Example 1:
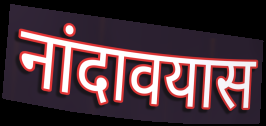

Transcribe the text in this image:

नांदावयास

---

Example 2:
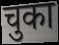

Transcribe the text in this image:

चुका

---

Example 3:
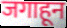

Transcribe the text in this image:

जगाहून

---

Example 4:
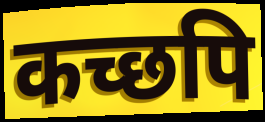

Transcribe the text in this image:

कच्छपि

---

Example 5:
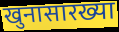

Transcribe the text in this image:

खुनासारख्या